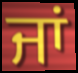
ਜਾਂ